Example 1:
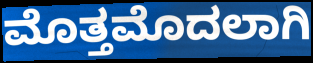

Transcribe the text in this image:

ಮೊತ್ತಮೊದಲಾಗಿ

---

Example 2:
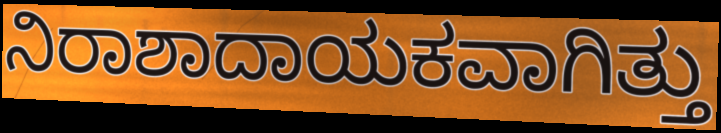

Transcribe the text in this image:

ನಿರಾಶಾದಾಯಕವಾಗಿತ್ತು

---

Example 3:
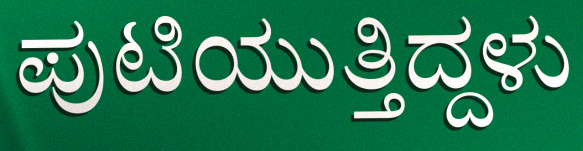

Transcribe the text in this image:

ಪುಟಿಯುತ್ತಿದ್ದಳು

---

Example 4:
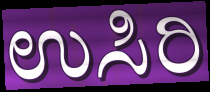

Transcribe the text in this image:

ಉಸಿರಿ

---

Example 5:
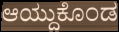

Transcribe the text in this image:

ಆಯ್ದುಕೊಂಡ